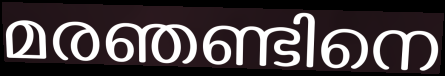
മരഞണ്ടിനെ